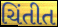
ચિંતીત